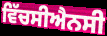
ਵਿੱਚਸੀਐਨਸੀ